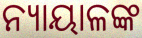
ନ୍ୟାୟାଳଙ୍କ